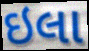
ઇલા